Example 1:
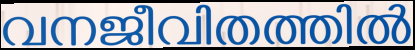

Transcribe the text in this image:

വനജീവിതത്തിൽ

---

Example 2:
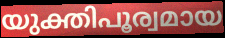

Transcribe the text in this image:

യുക്തിപൂര്വമായ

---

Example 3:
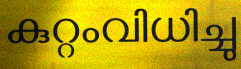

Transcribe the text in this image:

കുറ്റംവിധിച്ചു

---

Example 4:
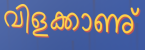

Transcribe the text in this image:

വിളക്കാണു്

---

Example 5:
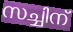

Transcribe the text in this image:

സച്ചിന്